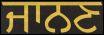
ਜਾਨਣ